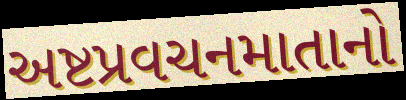
અષ્ટપ્રવચનમાતાનો